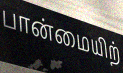
பான்மையிற்